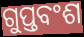
ଗୁପ୍ତବଂଶ